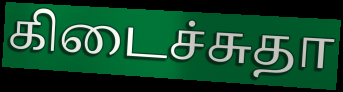
கிடைச்சுதா